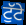
ਟੁੱਟੇ